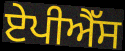
ਏਪੀਐੱਸ